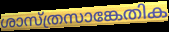
ശാസ്ത്രസാങ്കേതിക